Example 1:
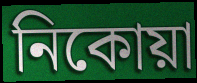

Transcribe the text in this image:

নিকোয়া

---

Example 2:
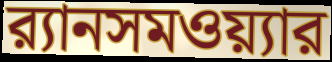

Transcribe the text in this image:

র‍্যানসমওয়্যার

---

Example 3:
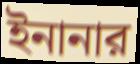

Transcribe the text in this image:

ইনানার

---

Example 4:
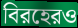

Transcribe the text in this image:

বিরহেরও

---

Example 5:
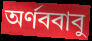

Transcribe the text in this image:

অর্ণববাবু